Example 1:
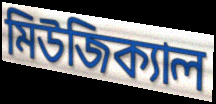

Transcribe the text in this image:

মিউজিক্যাল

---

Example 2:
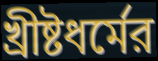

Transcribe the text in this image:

খ্রীষ্টধর্মের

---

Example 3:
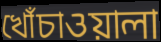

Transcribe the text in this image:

খোঁচাওয়ালা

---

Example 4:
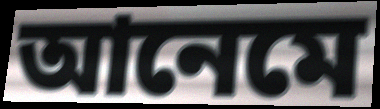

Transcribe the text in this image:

আনেমে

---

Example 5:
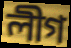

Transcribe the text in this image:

লীগ